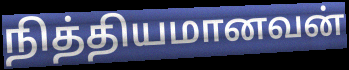
நித்தியமானவன்